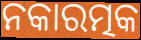
ନକାରତ୍ମକ